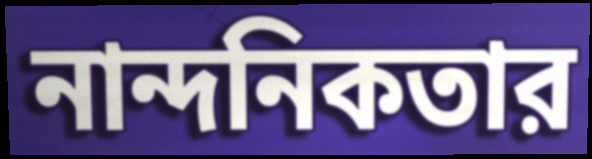
নান্দনিকতার